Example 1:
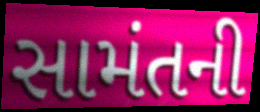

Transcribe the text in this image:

સામંતની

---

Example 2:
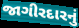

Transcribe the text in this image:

જાગીરદારનું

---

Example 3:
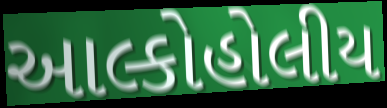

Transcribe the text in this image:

આલ્કોહોલીય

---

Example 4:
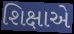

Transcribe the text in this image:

શિક્ષાએ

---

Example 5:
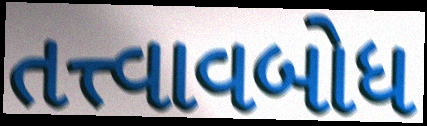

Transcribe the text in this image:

તત્ત્વાવબોધ